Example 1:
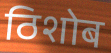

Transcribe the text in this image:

ठिशोब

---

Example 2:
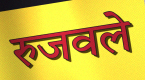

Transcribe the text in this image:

रुजवले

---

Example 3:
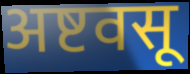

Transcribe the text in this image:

अष्टवसू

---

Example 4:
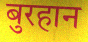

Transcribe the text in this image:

बुरहान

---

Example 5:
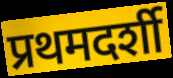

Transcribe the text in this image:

प्रथमदर्शी